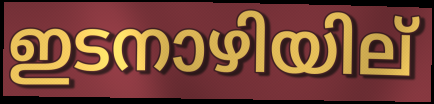
ഇടനാഴിയില്